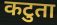
कटुता